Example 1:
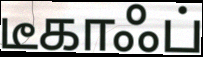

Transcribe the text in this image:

டீகாஃப்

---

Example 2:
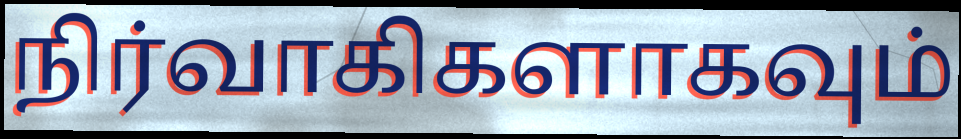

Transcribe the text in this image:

நிர்வாகிகளாகவும்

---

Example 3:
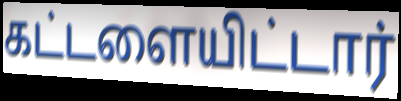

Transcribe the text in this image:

கட்டளையிட்டார்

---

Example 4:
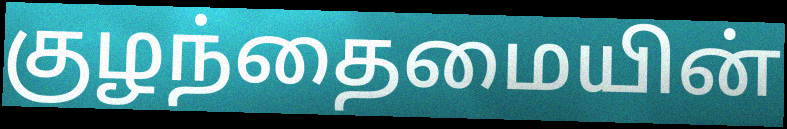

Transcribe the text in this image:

குழந்தைமையின்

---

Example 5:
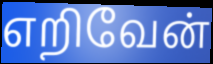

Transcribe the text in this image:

எறிவேன்